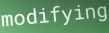
modifying